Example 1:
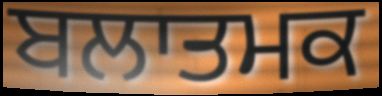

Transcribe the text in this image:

ਬਲਾਤਮਕ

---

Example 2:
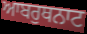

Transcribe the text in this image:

ਆਬਰੁਥਨਾਟ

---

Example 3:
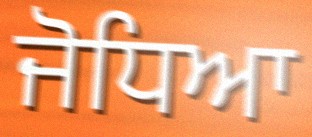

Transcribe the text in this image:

ਜੋਧਿਆ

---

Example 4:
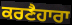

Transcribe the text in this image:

ਕਰਣੈਹਾਰਾ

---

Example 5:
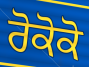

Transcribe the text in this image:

ਰੋਕੋਕੋ